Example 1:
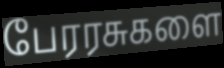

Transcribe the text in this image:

பேரரசுகளை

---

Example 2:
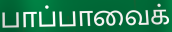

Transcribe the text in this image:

பாப்பாவைக்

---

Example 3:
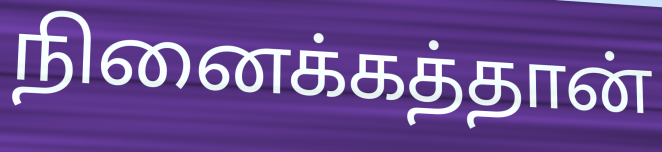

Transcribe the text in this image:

நினைக்கத்தான்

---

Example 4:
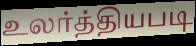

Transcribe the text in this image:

உலர்த்தியபடி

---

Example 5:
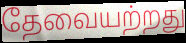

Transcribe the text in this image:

தேவையற்றது